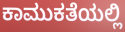
ಕಾಮುಕತೆಯಲ್ಲಿ